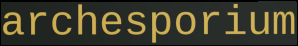
archesporium